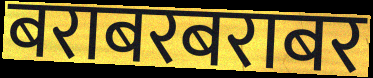
बराबरबराबर